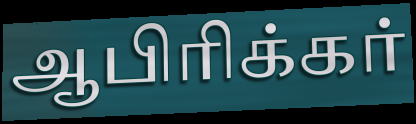
ஆபிரிக்கர்